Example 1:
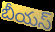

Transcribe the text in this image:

బీయస్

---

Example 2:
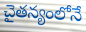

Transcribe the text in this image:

చైతన్యంలోనే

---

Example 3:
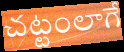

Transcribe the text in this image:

చట్టంలాగే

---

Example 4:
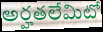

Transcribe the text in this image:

అర్హతలేమిటో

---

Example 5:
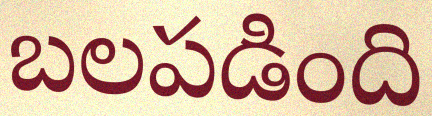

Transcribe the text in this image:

బలపడింది